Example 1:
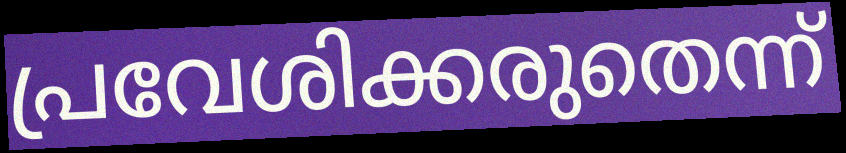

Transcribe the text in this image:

പ്രവേശിക്കരുതെന്ന്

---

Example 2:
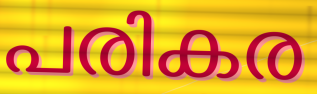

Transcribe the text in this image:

പരികര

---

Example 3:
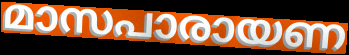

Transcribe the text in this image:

മാസപാരായണ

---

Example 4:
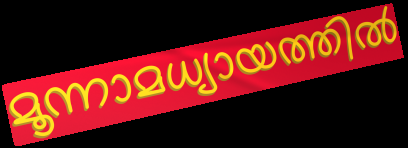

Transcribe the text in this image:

മൂന്നാമധ്യായത്തിൽ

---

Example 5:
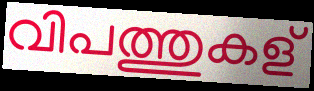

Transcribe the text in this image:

വിപത്തുകള്